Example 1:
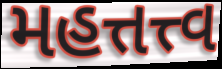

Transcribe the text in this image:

મહત્તત્ત્વ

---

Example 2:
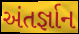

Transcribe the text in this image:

અંતર્જ્ઞાન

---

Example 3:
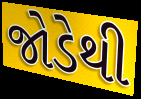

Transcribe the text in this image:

જોડેથી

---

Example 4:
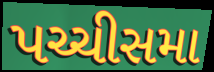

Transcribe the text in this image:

પચ્ચીસમા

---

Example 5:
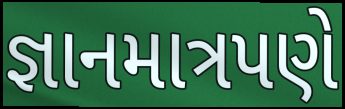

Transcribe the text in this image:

જ્ઞાનમાત્રપણે